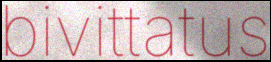
bivittatus